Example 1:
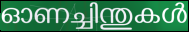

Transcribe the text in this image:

ഓണച്ചിന്തുകൾ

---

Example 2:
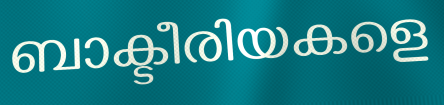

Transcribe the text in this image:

ബാക്ടീരിയകളെ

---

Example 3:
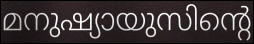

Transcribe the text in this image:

മനുഷ്യായുസിന്റെ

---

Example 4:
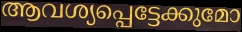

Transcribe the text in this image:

ആവശ്യപ്പെട്ടേക്കുമോ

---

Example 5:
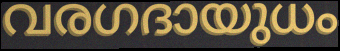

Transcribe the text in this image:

വരഗദായുധം